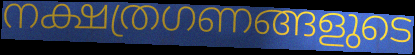
നക്ഷത്രഗണങ്ങളുടെ